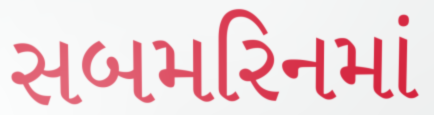
સબમરિનમાં